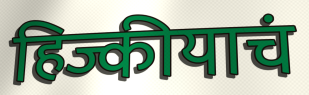
हिज्कीयाचं